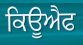
ਕਿਊਐਫ